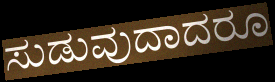
ಸುಡುವುದಾದರೂ